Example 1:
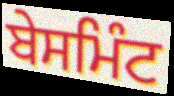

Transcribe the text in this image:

ਬੇਸਮਿੰਟ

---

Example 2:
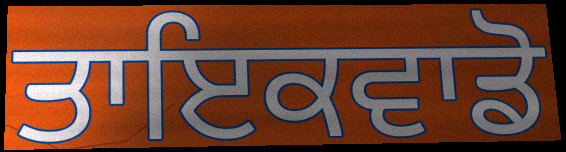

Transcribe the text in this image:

ਤਾਇਕਵਾਡੋ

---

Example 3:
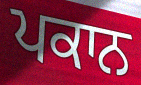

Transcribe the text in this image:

ਪਕਾਨ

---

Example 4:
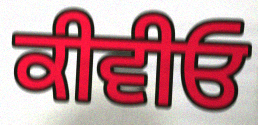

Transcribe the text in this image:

ਕੀਵੀਓ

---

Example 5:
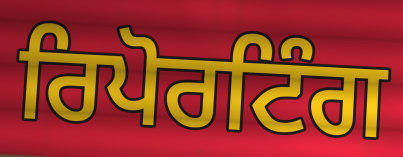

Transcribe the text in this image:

ਰਿਪੋਰਟਿੰਗ